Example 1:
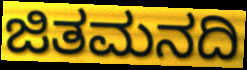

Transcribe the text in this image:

ಜಿತಮನದಿ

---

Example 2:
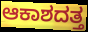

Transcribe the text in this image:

ಆಕಾಶದತ್ತ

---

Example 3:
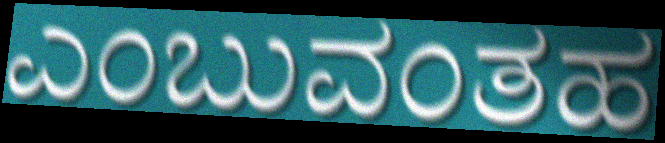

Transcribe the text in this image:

ಎಂಬುವಂತಹ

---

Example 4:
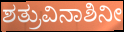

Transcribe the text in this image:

ಶತ್ರುವಿನಾಶಿನೀ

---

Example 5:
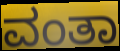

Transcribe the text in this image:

ವಂತಾ